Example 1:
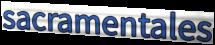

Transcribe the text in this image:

sacramentales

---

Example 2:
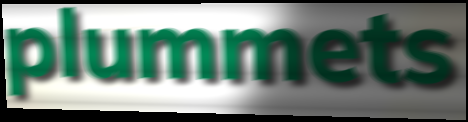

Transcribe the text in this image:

plummets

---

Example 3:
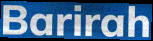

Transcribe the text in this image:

Barirah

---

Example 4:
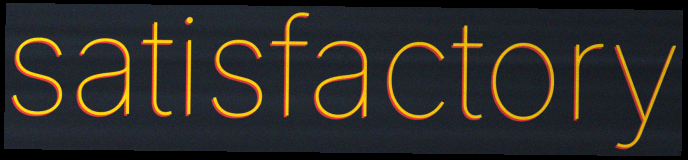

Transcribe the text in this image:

satisfactory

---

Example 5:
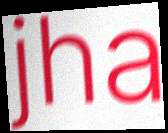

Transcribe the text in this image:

jha